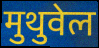
मुथुवेल